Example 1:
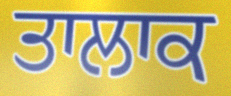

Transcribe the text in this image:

ਤਾਲਾਕ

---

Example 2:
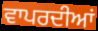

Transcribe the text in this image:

ਵਾਪਰਦੀਆਂ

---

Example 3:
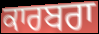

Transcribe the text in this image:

ਕਾਰਬਰਾ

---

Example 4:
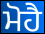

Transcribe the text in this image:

ਮੋਹੈ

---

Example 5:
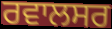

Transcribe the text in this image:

ਰਵਾਲਸਰ